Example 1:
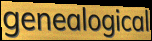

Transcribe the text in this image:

genealogical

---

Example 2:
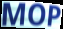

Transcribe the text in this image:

MOP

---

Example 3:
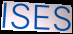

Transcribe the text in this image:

ISES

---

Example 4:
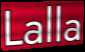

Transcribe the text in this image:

Lalla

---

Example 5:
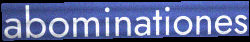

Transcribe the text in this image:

abominationes